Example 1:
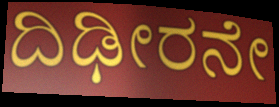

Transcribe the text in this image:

ದಿಢೀರನೇ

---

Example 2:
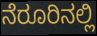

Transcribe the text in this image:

ನೆರೂರಿನಲ್ಲಿ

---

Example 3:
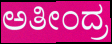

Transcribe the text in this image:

ಅತೀಂದ್ರ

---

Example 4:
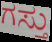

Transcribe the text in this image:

ಗಸ್ತು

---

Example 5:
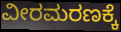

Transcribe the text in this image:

ವೀರಮರಣಕ್ಕೆ